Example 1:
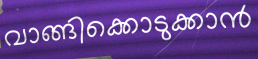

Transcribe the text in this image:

വാങ്ങിക്കൊടുക്കാൻ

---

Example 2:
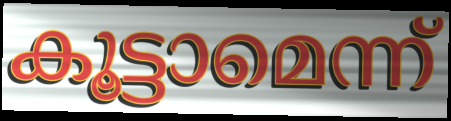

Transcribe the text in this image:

കൂട്ടാമെന്ന്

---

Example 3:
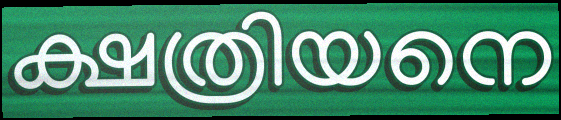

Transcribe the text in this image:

ക്ഷത്രിയനെ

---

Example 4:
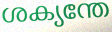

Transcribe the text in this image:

ശക്യന്തേ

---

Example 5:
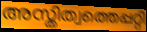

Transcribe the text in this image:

അസ്തിത്വത്തെപ്പറ്റി